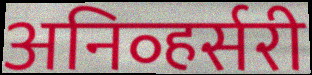
अनिव्हर्सरी